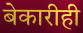
बेकारीही